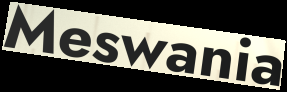
Meswania